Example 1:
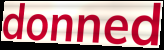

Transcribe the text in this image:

donned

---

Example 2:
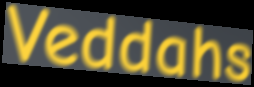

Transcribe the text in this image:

Veddahs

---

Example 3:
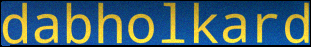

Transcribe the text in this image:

dabholkard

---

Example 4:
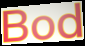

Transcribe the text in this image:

Bod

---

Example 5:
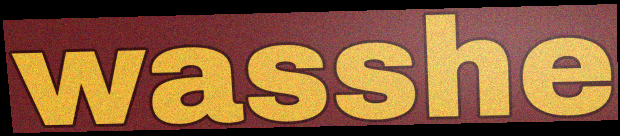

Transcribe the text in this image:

wasshe